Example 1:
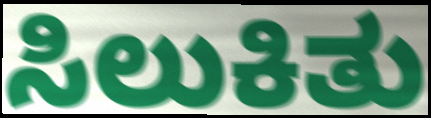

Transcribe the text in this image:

ಸಿಲುಕಿತು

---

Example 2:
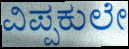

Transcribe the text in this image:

ವಿಪ್ಪಕುಲೇ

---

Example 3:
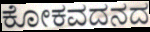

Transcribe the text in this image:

ಕೋಕವದನದ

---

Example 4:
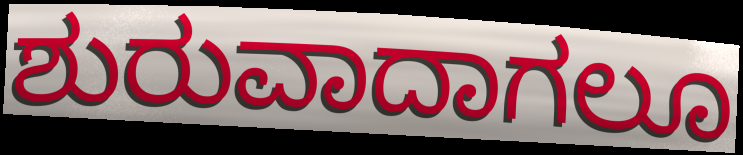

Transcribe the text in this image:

ಶುರುವಾದಾಗಲೂ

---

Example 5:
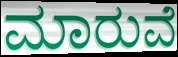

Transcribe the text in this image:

ಮಾರುವೆ